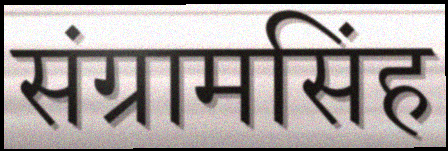
संग्रामसिंह